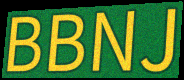
BBNJ